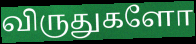
விருதுகளோ